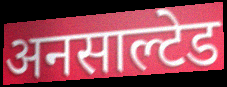
अनसाल्टेड